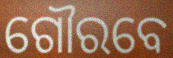
ଗୌରବେ